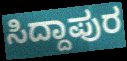
ಸಿದ್ದಾಪುರ